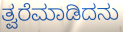
ತ್ವರೆಮಾಡಿದನು